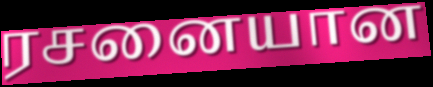
ரசனையான